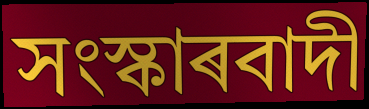
সংস্কাৰবাদী